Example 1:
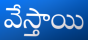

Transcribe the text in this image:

వేస్తాయి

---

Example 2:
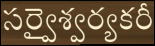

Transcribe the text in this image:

సర్వైశ్వర్యకరీ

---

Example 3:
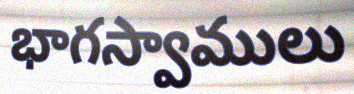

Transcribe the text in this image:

భాగస్వాములు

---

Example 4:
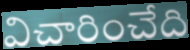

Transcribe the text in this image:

విచారించేది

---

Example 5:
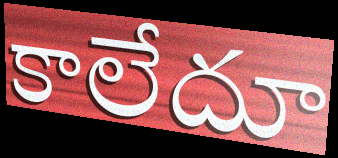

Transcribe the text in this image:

కాలేదూ